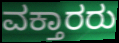
ವಕ್ತಾರರು